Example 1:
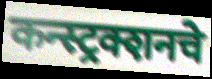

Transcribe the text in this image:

कन्स्ट्रक्शनचे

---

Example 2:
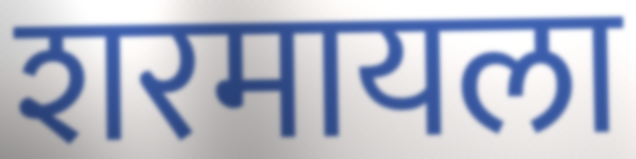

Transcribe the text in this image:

शरमायला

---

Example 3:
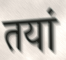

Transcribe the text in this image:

तयां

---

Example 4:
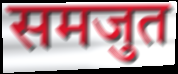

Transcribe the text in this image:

समजुत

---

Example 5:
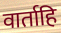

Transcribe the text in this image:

वार्ताहि